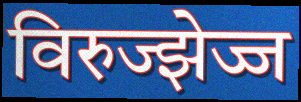
विरुज्झेज्ज